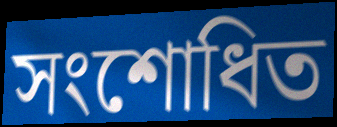
সংশোধিত